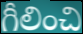
గీలించి